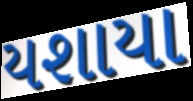
યશાયા